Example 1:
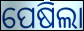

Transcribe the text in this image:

ପେଷିଲା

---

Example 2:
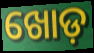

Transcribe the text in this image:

ଖୋଡ଼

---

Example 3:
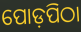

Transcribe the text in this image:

ପୋଡ଼ପିଠା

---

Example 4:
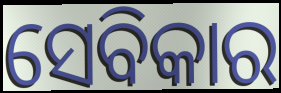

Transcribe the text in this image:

ସେବିକାର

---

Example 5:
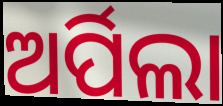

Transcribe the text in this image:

ଅର୍ପିଲା